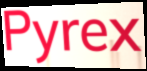
Pyrex